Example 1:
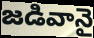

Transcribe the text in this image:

జడివానై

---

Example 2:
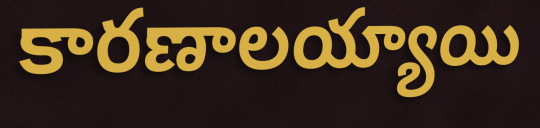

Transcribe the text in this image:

కారణాలయ్యాయి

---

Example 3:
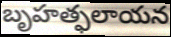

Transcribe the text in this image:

బృహత్ఫలాయన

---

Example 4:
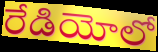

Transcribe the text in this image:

రేడియోలో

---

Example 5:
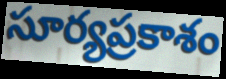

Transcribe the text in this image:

సూర్యప్రకాశం